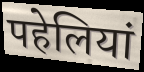
पहेलियां